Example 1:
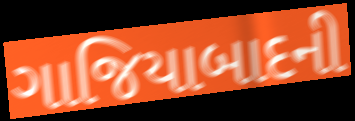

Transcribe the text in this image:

ગાજિયાબાદની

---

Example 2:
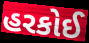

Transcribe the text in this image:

હરકોઈ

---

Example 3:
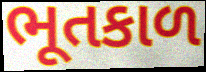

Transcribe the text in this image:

ભૂતકાળ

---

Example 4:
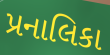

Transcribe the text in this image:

પ્રનાલિકા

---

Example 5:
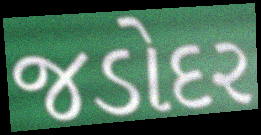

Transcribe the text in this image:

જડોદર